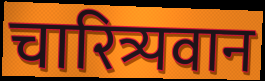
चारित्र्यवान